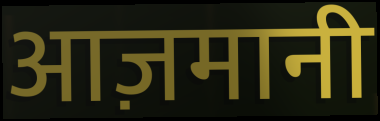
आज़मानी